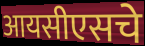
आयसीएसचे